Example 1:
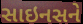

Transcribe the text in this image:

સાઇનસને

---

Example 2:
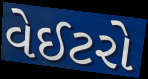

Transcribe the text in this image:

વેઈટરો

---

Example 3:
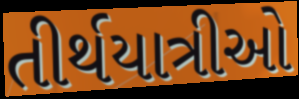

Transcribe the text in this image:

તીર્થયાત્રીઓ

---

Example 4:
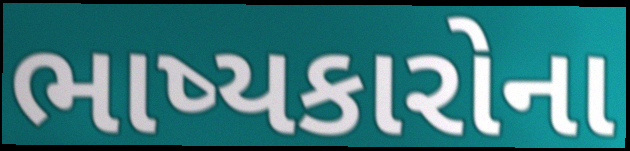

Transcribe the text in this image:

ભાષ્યકારોના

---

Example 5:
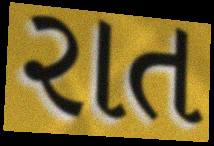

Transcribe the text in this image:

રાત